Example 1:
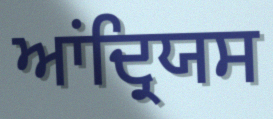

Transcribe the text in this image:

ਆਂਦ੍ਰਿਯਸ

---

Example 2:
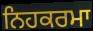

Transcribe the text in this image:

ਨਿਹਕਰਮਾ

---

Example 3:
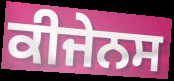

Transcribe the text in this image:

ਕੀਜੇਨਸ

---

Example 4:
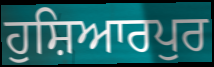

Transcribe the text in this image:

ਹੁਸ਼ਿਆਰਪੁਰ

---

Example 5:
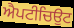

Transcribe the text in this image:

ਐਪਟੀਚਿਉਟ